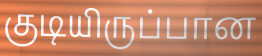
குடியிருப்பான